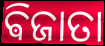
ଵିଜାତା